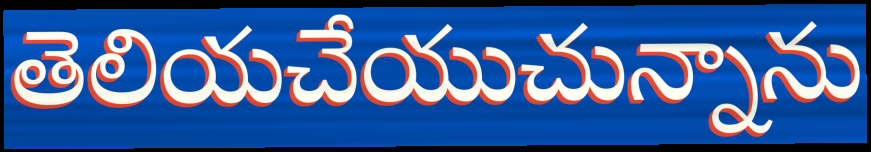
తెలియచేయుచున్నాను